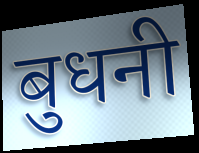
बुधनी